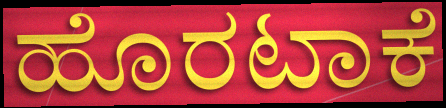
ಹೊರಟಾಕೆ